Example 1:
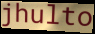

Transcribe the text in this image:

jhulto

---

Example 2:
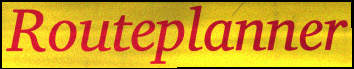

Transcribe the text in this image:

Routeplanner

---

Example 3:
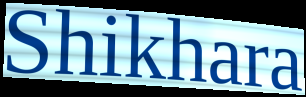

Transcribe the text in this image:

Shikhara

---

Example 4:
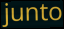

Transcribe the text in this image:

junto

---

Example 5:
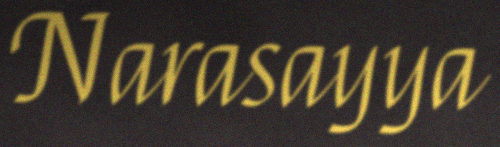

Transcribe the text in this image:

Narasayya